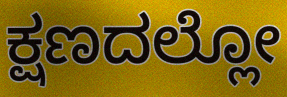
ಕ್ಷಣದಲ್ಲೋ